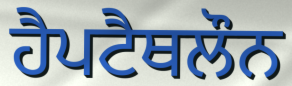
ਹੈਪਟੈਥਲੌਨ